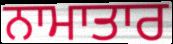
ਨਾਮਾਤਾਰ